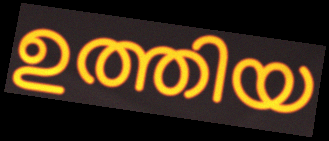
ഉത്തിയ